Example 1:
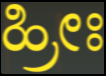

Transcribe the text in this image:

ಹ್ರೀಃ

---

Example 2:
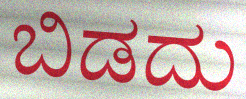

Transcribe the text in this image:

ಬಿಡದು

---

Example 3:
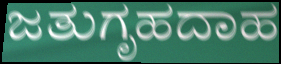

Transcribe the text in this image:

ಜತುಗೃಹದಾಹ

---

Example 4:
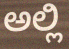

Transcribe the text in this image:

ಅಲ್ಲಿ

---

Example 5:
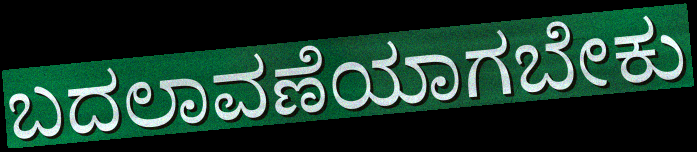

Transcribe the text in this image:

ಬದಲಾವಣೆಯಾಗಬೇಕು